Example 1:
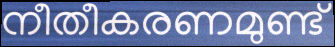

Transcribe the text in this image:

നീതീകരണമുണ്ട്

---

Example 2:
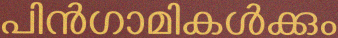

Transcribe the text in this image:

പിൻഗാമികൾക്കും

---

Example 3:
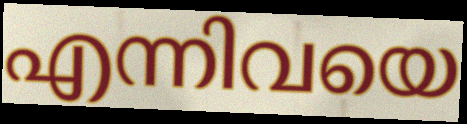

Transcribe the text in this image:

എന്നിവയെ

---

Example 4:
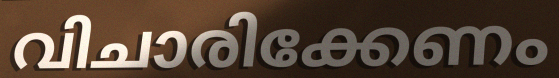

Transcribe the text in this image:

വിചാരിക്കേണം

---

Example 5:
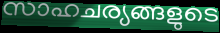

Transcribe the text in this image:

സാഹചര്യങ്ങളുടെ